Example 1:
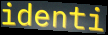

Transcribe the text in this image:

identi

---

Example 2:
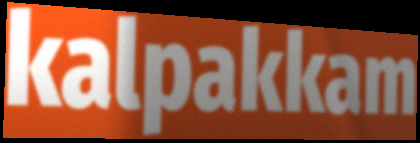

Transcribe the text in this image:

kalpakkam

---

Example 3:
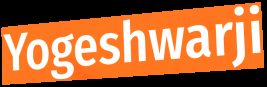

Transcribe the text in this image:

Yogeshwarji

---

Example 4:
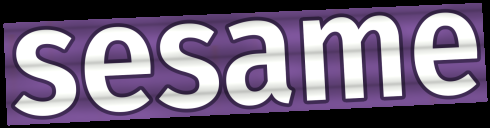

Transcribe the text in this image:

sesame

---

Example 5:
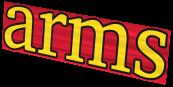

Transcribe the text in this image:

arms